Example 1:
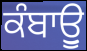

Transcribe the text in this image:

ਕੰਬਾਊੁ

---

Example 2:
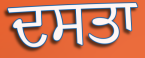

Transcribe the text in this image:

ਦਸਤਾ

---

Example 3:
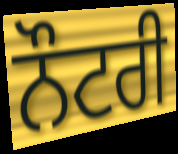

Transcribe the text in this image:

ਨੌਟਰੀ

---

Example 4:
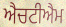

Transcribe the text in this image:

ਐਚਟੀਐਮ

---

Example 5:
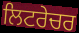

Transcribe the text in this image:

ਲਿਟਰੇਚਰ